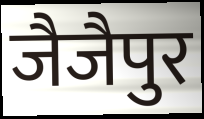
जैजैपुर